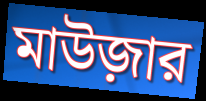
মাউজ়ার